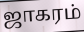
ஜாகரம்